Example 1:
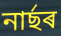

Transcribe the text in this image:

নাৰ্ছৰ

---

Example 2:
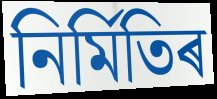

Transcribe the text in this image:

নিৰ্মিতিৰ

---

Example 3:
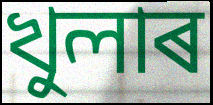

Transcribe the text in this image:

খুলাৰ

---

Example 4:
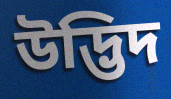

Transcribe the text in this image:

উদ্ভিদ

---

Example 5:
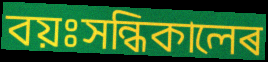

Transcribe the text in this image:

বয়ঃসন্ধিকালেৰ